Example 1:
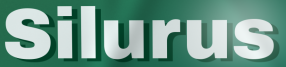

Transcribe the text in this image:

Silurus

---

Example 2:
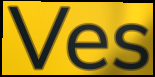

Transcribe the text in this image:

Ves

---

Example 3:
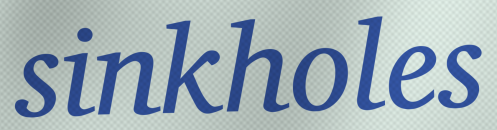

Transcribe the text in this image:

sinkholes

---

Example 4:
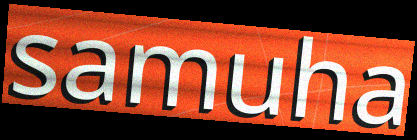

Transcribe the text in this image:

samuha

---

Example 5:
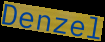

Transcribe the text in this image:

Denzel